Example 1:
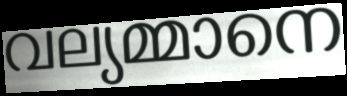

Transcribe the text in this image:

വല്യമ്മാനെ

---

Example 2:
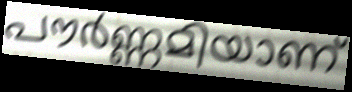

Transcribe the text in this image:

പൗർണ്ണമിയാണ്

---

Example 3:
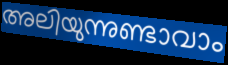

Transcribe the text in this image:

അലിയുന്നുണ്ടാവാം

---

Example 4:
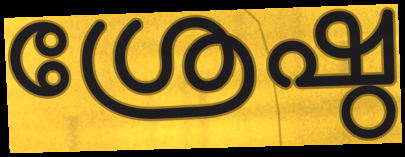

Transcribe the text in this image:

ശ്രേഷ്ഠ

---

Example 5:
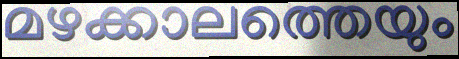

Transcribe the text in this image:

മഴക്കാലത്തെയും